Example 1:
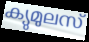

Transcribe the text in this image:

ക്യുമുലസ്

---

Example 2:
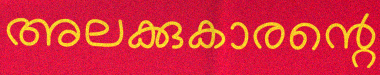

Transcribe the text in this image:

അലക്കുകാരന്റെ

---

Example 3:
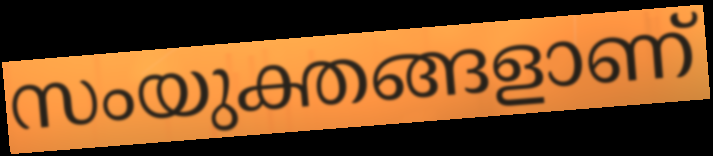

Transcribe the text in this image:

സംയുക്തങ്ങളാണ്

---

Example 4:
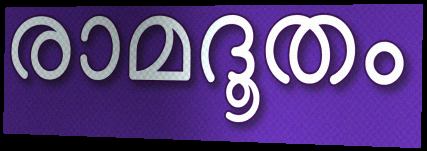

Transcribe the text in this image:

രാമദൂതം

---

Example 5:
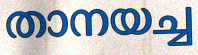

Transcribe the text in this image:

താനയച്ച